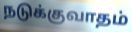
நடுக்குவாதம்